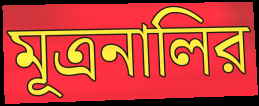
মূত্রনালির